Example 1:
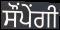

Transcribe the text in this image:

ਸੌਂਪੇਂਗੀ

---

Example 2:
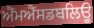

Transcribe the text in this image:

ਐੱਮਐੱਸਡਬਲਿਊ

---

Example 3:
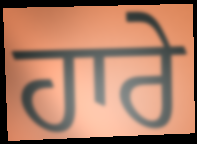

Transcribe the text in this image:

ਹਾਰੇ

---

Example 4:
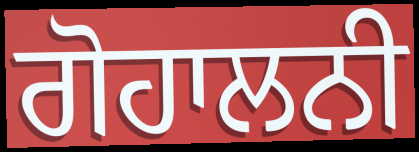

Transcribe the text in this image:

ਗੋਹਾਲਨੀ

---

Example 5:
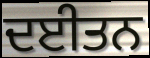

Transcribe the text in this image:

ਦਈਤਨ